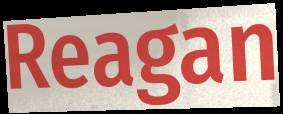
Reagan